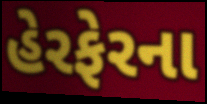
હેરફેરના